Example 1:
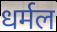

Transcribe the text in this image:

धर्मल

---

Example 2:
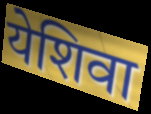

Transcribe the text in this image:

येशिवा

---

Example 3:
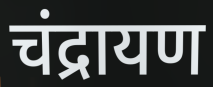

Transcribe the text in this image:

चंद्रायण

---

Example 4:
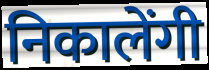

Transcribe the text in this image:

निकालेंगी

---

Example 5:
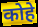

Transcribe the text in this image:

कोहे